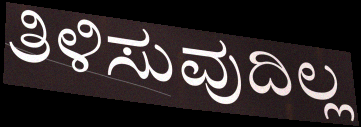
ತಿಳಿಸುವುದಿಲ್ಲ